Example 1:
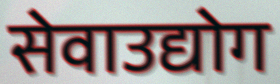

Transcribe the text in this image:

सेवाउद्योग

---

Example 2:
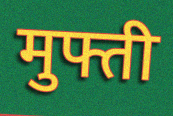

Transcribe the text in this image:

मुफ्ती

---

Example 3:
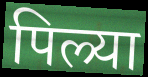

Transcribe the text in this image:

पिल्या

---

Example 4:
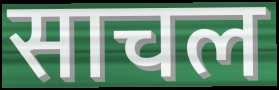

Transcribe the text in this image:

साचल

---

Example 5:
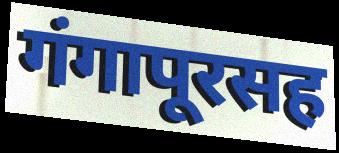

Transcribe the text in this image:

गंगापूरसह